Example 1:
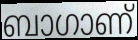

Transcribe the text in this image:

ബാഗാണ്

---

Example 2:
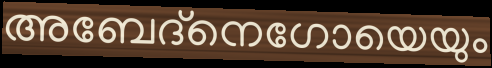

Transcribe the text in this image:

അബേദ്നെഗോയെയും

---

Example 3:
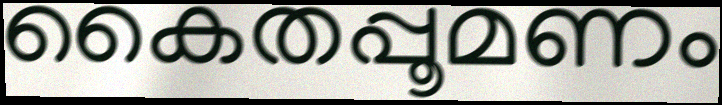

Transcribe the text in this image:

കൈതപ്പൂമണം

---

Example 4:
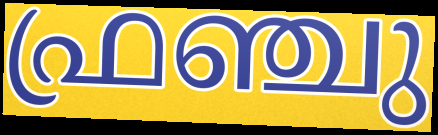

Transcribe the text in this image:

ഫ്രഞ്ചു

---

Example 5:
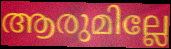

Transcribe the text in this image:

ആരുമില്ലേ